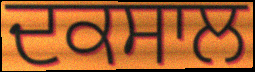
ਦਕਸਾਲ